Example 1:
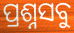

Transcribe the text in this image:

ପ୍ରଶ୍ନସବୁ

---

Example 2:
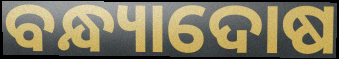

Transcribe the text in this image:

ବନ୍ଧ୍ୟାଦୋଷ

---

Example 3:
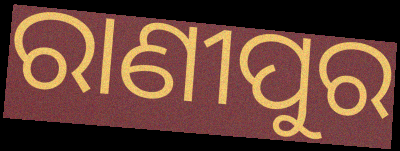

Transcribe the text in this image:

ରାଣୀପୁର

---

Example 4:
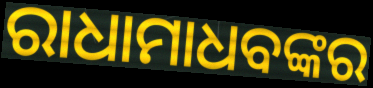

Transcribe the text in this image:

ରାଧାମାଧବଙ୍କର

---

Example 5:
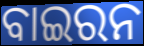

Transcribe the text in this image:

ବାଇରନ